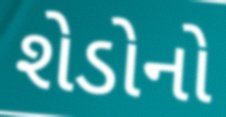
શેડોનો